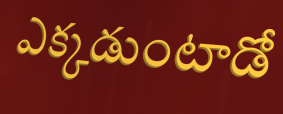
ఎక్కడుంటాడో